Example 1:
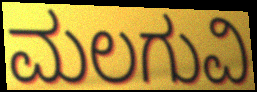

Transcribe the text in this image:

ಮಲಗುವಿ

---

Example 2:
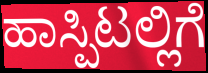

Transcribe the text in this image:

ಹಾಸ್ಪಿಟಲ್ಲಿಗೆ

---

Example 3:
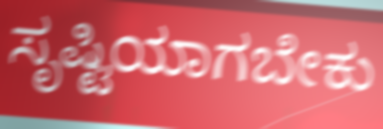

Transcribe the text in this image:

ಸೃಷ್ಟಿಯಾಗಬೇಕು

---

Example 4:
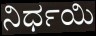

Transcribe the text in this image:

ನಿರ್ಧಯಿ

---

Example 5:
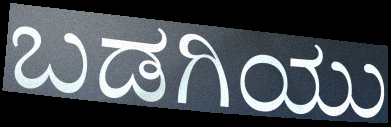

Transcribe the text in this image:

ಬಡಗಿಯು